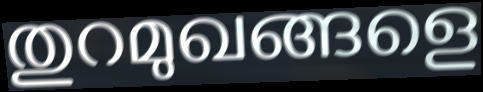
തുറമുഖങ്ങളെ